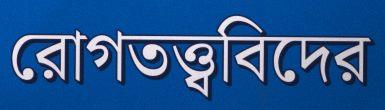
রোগতত্ত্ববিদের